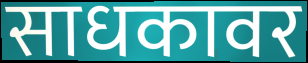
साधकावर